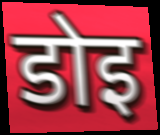
डोइ